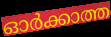
ഓർക്കാത്ത